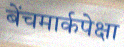
बेंचमार्कपेक्षा